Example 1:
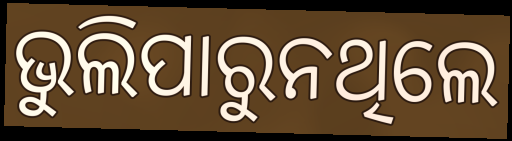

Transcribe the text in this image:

ଭୁଲିପାରୁନଥିଲେ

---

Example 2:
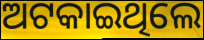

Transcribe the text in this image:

ଅଟକାଇଥିଲେ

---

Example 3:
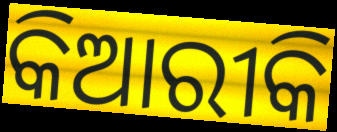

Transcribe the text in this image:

କିଆରୀକି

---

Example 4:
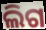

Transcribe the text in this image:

ଲିଗ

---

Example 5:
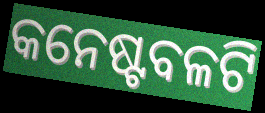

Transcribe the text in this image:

କନେଷ୍ଟବଳଟି